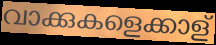
വാക്കുകളെക്കാള്